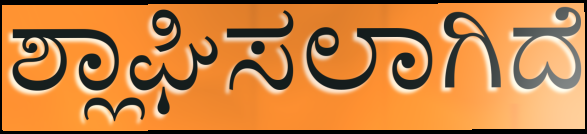
ಶ್ಲಾಘಿಸಲಾಗಿದೆ